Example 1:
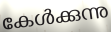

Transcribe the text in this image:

കേൾക്കുന്നു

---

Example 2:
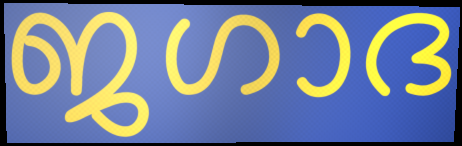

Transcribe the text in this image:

ജഗാദ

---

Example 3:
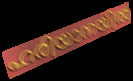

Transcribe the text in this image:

ഹരിയാനയിൽ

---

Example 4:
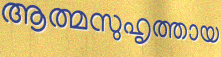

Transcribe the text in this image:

ആത്മസുഹൃത്തായ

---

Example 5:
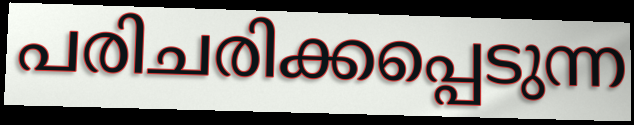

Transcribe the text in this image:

പരിചരിക്കപ്പെടുന്ന